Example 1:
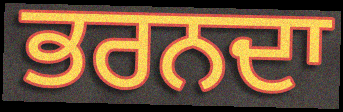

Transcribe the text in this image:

ਭਰਨਦਾ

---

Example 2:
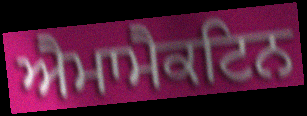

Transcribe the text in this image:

ਐਮਾਮੈਕਟਿਨ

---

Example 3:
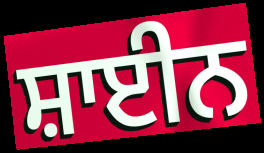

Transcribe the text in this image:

ਸ਼ਾਈਨ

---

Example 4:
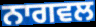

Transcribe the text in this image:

ਨਾਗਵਲ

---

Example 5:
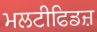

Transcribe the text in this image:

ਮਲਟੀਫਿਡਜ਼